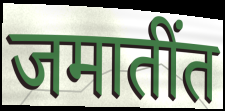
जमातींत